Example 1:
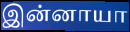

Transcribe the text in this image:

இன்னாயா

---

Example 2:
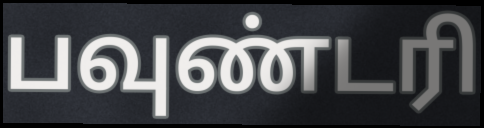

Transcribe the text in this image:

பவுண்டரி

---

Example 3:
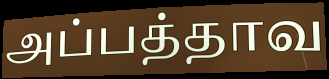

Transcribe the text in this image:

அப்பத்தாவ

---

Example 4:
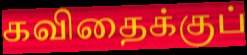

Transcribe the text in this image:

கவிதைக்குப்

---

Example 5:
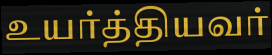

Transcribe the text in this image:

உயர்த்தியவர்